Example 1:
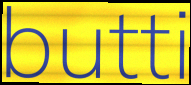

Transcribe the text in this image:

butti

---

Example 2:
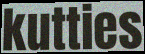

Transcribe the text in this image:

kutties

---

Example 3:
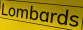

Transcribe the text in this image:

Lombards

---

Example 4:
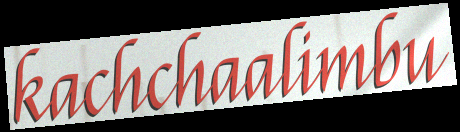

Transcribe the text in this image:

kachchaalimbu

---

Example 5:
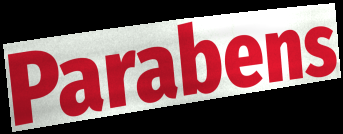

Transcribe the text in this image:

Parabens